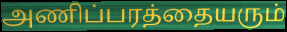
அணிப்பரத்தையரும்